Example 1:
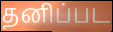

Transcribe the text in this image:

தனிப்பட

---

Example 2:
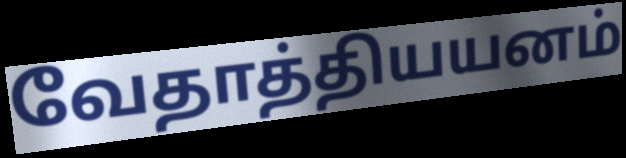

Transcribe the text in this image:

வேதாத்தியயனம்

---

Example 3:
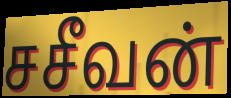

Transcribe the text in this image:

சசீவன்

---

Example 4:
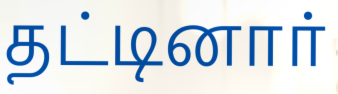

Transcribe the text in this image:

தட்டினார்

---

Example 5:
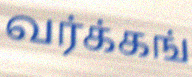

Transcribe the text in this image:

வர்க்கங்